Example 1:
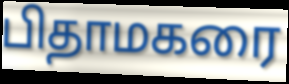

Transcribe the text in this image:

பிதாமகரை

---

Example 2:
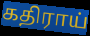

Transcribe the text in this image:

கதிராய்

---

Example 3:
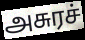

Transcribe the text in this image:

அசுரச்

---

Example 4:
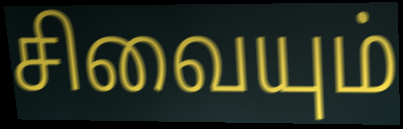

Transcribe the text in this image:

சிவையும்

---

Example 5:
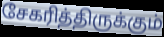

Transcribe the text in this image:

சேகரித்திருக்கும்